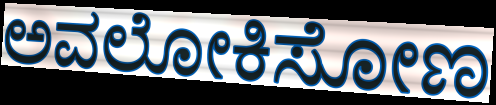
ಅವಲೋಕಿಸೋಣ